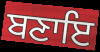
ਬਣਾਇ